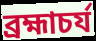
ব্ৰহ্মাচৰ্য